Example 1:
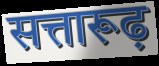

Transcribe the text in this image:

सत्तारूढ़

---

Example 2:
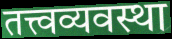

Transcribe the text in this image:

तत्त्वव्यवस्था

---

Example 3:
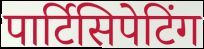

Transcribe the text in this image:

पार्टिसिपेटिंग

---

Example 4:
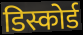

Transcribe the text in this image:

डिस्कोर्ड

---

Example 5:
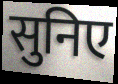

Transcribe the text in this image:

सुनिए